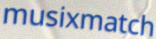
musixmatch